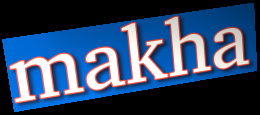
makha